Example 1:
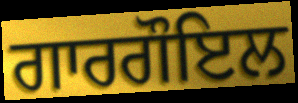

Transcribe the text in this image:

ਗਾਰਗੌਇਲ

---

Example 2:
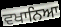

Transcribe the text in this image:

ਵਖਾਨਿਆ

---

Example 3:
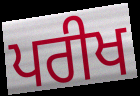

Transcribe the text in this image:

ਪਰੀਖ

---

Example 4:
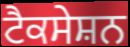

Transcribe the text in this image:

ਟੈਕਸੇਸ਼ਨ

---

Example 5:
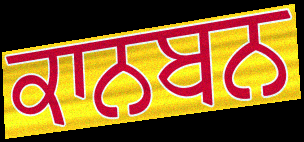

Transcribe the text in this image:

ਕਾਨਬਨ